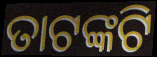
ତାଟଙ୍କଟି